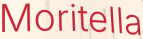
Moritella